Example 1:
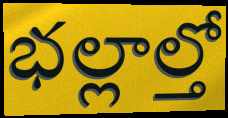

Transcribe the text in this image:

భల్లాల్తో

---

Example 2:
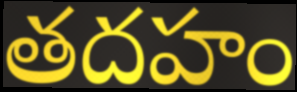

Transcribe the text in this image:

తదహం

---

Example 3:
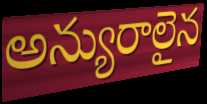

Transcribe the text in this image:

అన్యురాలైన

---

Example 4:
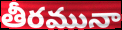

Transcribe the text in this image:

తీరమునా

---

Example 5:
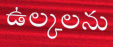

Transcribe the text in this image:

ఉల్కలను